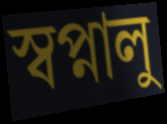
স্বপ্নালু